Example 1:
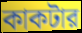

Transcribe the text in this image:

কাকটার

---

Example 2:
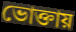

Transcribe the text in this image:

ভোক্তায়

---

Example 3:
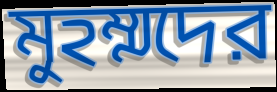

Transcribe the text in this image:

মুহম্মদের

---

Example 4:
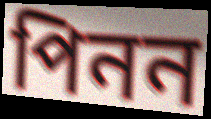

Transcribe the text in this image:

পিনন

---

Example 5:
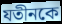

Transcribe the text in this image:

যতীনকে